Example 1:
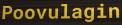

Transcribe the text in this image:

Poovulagin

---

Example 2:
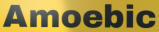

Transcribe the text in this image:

Amoebic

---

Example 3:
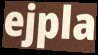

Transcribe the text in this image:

ejpla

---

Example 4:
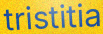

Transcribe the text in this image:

tristitia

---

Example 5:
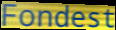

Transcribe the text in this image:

Fondest